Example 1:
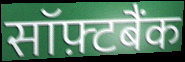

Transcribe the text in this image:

सॉफ़्टबैंक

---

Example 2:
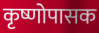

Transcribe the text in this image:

कृष्णोपासक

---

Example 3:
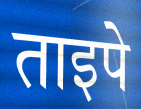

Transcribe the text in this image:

ताइपे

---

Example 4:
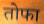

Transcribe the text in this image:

तोफा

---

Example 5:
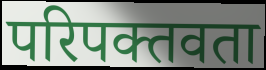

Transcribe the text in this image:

परिपक्तवता